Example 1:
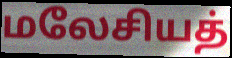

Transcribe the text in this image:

மலேசியத்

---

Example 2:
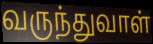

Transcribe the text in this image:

வருந்துவாள்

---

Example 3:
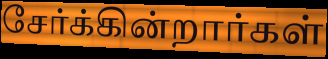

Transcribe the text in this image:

சேர்க்கின்றார்கள்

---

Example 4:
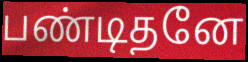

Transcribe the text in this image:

பண்டிதனே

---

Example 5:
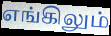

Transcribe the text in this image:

எங்கிலும்